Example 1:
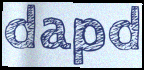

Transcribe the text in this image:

dapd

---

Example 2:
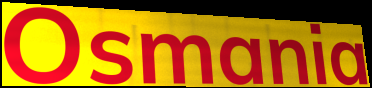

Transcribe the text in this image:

Osmania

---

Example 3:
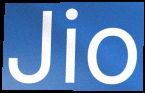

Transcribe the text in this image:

Jio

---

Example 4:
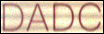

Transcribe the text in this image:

DADC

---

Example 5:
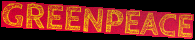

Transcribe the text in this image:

GREENPEACE